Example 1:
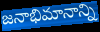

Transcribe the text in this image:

జనాభిమానాన్ని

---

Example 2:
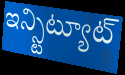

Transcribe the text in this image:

ఇన్స్టిట్యూట్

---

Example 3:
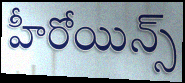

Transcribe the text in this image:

హీరోయిన్స్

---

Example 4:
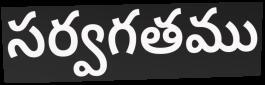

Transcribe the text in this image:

సర్వగతము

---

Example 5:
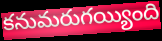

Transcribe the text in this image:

కనుమరుగయ్యింది